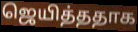
ஜெயித்ததாக